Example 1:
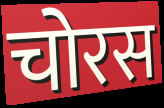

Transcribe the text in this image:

चोरस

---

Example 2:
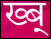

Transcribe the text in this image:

ख्ब्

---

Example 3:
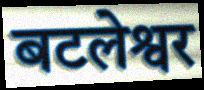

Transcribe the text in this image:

बटलेश्वर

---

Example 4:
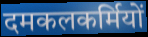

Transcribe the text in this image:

दमकलकर्मियों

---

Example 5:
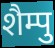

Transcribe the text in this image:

शैम्पु